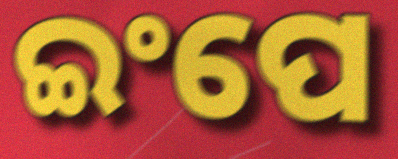
ଇଂପେ